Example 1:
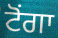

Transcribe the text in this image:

ਟੋਂਗਾ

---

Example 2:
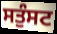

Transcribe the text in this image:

ਸਤੁੰਸਟ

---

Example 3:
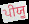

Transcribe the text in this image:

ਪੀਯੂ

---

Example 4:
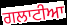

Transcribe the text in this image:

ਗਲਾਟੀਆ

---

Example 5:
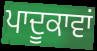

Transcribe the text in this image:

ਪਾਦੂਕਾਵਾਂ